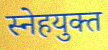
स्नेहयुक्त